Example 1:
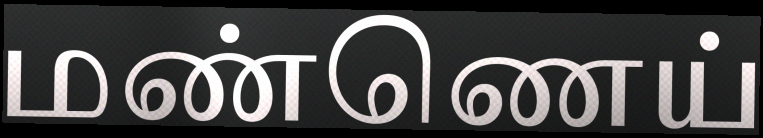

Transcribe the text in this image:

மண்ணெய்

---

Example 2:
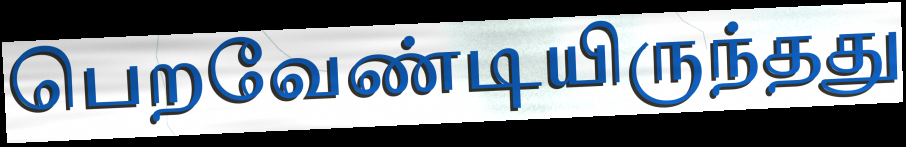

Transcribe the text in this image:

பெறவேண்டியிருந்தது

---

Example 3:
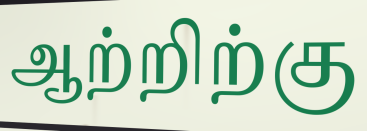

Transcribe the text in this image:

ஆற்றிற்கு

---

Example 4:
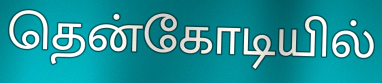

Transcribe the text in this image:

தென்கோடியில்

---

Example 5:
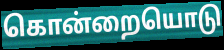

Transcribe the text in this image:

கொன்றையொடு